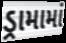
ડ્રામામાં